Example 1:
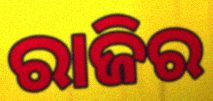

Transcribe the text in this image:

ରାଜିର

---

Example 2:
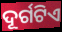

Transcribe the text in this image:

ଦୂର୍ଗଟିଏ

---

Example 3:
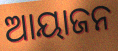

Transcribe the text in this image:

ଆୟାଜନ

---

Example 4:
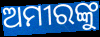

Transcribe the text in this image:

ଅମୀରଙ୍କୁ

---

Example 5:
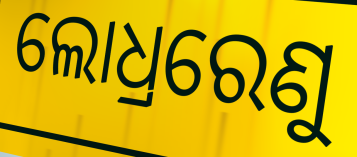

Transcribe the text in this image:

ଲୋଧ୍ରରେଣୁ